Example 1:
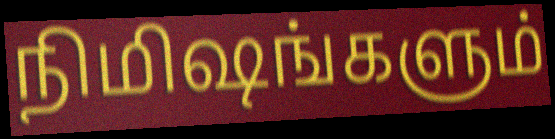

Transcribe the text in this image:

நிமிஷங்களும்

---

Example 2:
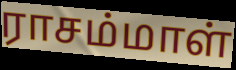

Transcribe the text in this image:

ராசம்மாள்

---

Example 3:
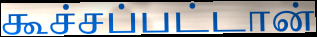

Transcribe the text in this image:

கூச்சப்பட்டான்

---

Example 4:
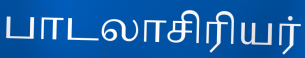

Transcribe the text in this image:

பாடலாசிரியர்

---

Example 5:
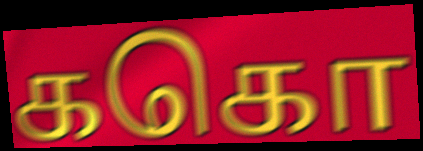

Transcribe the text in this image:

ககொ